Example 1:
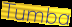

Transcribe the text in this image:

Tumba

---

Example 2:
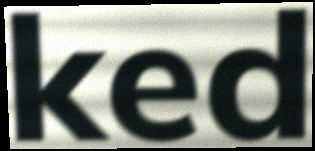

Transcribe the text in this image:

ked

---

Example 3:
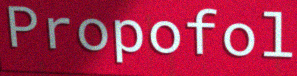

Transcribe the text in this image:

Propofol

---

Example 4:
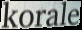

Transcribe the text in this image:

korale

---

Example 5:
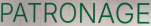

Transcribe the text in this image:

PATRONAGE